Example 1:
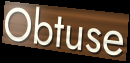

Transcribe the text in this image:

Obtuse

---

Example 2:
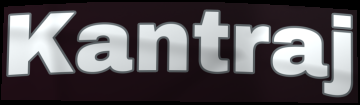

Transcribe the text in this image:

Kantraj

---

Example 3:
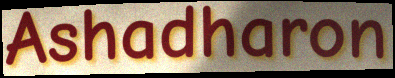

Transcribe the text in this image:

Ashadharon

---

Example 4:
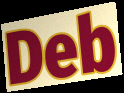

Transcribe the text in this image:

Deb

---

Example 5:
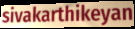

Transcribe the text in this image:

sivakarthikeyan